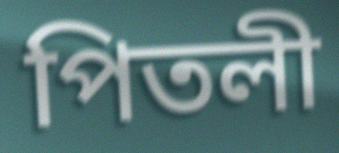
পিতলী